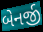
બેનર્જી